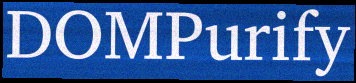
DOMPurify